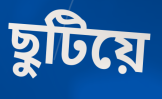
ছুটিয়ে